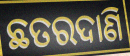
ଛତରଦାଣି